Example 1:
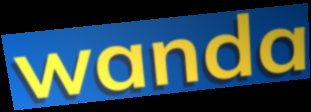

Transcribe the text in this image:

wanda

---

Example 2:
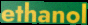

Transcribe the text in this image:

ethanol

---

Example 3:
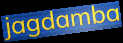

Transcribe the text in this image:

jagdamba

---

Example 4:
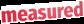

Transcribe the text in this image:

measured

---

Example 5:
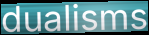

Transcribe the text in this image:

dualisms